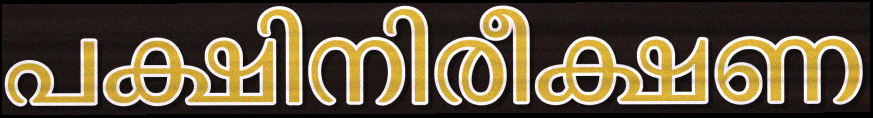
പക്ഷിനിരീക്ഷണ